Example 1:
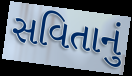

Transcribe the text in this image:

સવિતાનું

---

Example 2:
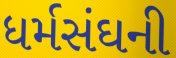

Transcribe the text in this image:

ધર્મસંઘની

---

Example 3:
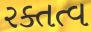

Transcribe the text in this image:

રક્તત્વ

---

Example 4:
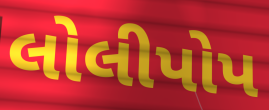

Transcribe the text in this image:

લોલીપોપ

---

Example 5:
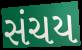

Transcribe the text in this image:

સંચય